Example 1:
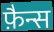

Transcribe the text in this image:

फ़ैन्स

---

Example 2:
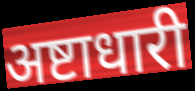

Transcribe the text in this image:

अष्टाधारी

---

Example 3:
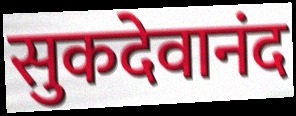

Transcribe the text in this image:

सुकदेवानंद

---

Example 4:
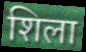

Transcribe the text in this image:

शिला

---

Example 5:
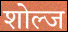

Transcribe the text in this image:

शोल्ज